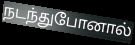
நடந்துபோனால்